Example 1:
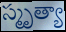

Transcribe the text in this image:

స్మృత్యా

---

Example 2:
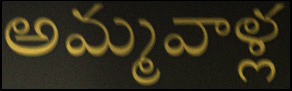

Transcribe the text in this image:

అమ్మవాళ్ల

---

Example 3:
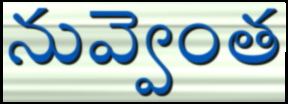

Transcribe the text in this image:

నువ్వెంత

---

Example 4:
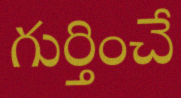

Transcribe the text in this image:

గుర్తించే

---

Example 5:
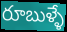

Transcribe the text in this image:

రూబుళ్ళే